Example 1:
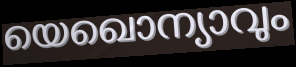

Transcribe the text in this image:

യെഖൊന്യാവും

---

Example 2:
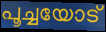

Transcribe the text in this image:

പൂച്ചയോട്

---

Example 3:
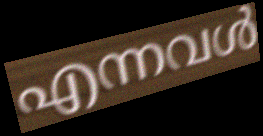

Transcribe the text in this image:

എന്നവൾ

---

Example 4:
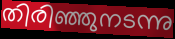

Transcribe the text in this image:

തിരിഞ്ഞുനടന്നു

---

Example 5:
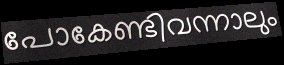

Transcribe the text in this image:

പോകേണ്ടിവന്നാലും